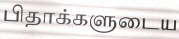
பிதாக்களுடைய